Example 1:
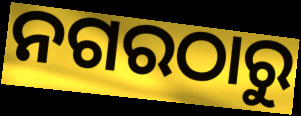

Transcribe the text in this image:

ନଗରଠାରୁ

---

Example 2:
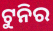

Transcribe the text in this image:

ଟୁନିର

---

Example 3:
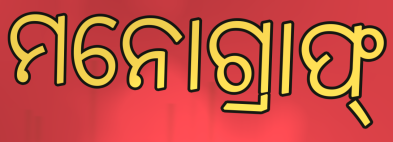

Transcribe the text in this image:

ମନୋଗ୍ରାଫ୍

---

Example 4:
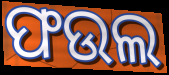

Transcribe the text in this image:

ଫଉଲ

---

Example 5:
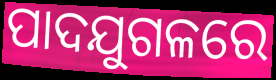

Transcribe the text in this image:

ପାଦଯୁଗଳରେ